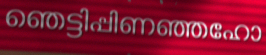
ഞെട്ടിപ്പിണഞ്ഞഹോ